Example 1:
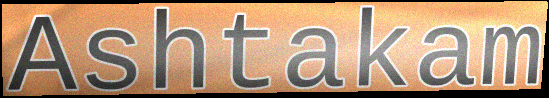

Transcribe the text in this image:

Ashtakam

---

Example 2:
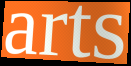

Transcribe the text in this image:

arts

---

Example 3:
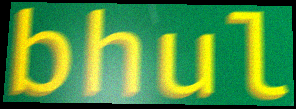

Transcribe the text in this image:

bhul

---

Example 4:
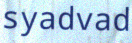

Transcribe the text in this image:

syadvad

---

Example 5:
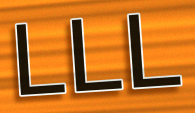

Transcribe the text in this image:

LLL